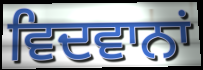
ਵਿਦਵਾਨਾਂ